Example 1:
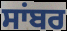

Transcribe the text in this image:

ਸਾਂਬਰ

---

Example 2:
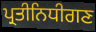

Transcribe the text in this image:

ਪ੍ਰਤੀਨਿਧੀਗਣ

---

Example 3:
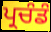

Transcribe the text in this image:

ਪ੍ਰਚੰਡੰ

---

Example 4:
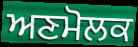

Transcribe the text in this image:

ਅਣਮੋਲਕ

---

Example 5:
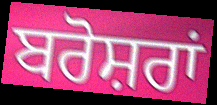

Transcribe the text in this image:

ਬਰੋਸ਼ਰਾਂ